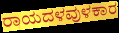
ರಾಯದಳವುಳಕಾರ